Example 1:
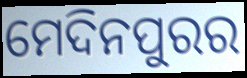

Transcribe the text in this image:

ମେଦିନପୁରର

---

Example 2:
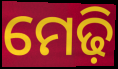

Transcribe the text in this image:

ମେଢ଼ି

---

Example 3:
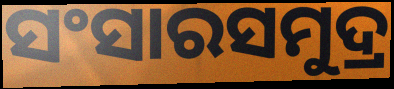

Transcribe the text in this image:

ସଂସାରସମୁଦ୍ର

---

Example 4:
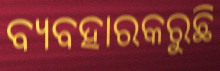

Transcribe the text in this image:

ବ୍ୟବହାରକରୁଛି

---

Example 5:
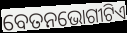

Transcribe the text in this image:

ବେତନଭୋଗୀଟିଏ